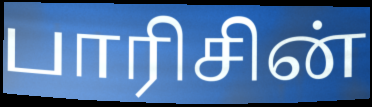
பாரிசின்